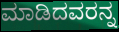
ಮಾಡಿದವರನ್ನ